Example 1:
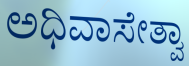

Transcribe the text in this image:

ಅಧಿವಾಸೇತ್ವಾ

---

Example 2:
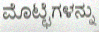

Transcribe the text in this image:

ಮೊಟ್ಟೆಗಳನ್ನು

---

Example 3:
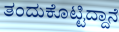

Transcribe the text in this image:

ತಂದುಕೊಟ್ಟಿದ್ದಾನೆ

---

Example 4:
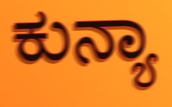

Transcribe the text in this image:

ಕುನ್ಯಾ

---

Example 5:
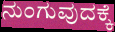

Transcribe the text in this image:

ನುಂಗುವುದಕ್ಕೆ